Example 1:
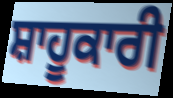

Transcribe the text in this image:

ਸ਼ਾਹੂਕਾਰੀ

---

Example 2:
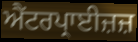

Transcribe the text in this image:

ਐਂਟਰਪ੍ਰਾਈਜ਼ਜ਼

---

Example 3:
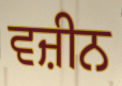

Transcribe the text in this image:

ਵਜ਼ੀਨ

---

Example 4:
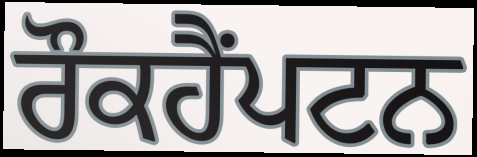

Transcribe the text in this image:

ਰੌਕਹੈਂਪਟਨ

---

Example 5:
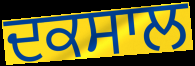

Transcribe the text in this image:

ਦਕਸਾਲ